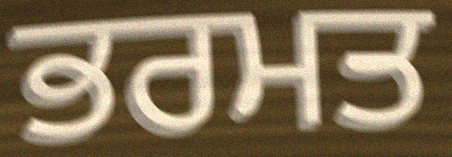
ਭਰਮਤ